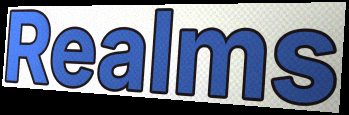
Realms